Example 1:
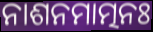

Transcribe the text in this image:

ନାଶନମାତ୍ମନଃ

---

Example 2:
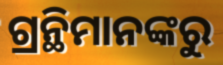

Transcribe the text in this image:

ଗ୍ରନ୍ଥିମାନଙ୍କରୁ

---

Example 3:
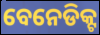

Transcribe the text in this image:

ବେନେଡିକ୍ଟ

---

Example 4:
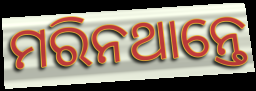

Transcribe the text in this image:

ମରିନଥାନ୍ତେ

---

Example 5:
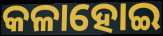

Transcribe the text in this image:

କଳାହୋଇ